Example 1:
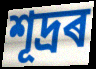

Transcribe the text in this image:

শূদ্ৰৰ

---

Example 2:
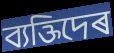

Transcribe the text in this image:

ব্যক্তিদেৰ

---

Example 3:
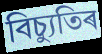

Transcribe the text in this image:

বিচ্যুতিৰ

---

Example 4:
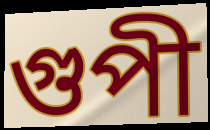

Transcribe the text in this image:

গুপী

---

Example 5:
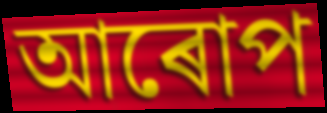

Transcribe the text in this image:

আৰোপ